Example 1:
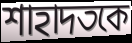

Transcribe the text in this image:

শাহাদতকে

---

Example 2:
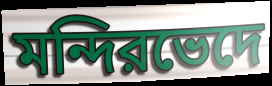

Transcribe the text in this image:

মন্দিরভেদে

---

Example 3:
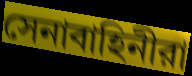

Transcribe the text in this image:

সেনাবাহিনীরা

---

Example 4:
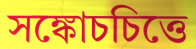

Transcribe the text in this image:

সঙ্কোচচিত্তে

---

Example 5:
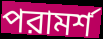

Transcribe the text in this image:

পরামর্শ